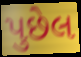
પુછેલ